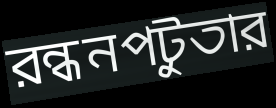
রন্ধনপটুতার